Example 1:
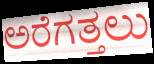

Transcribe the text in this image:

ಅರೆಗತ್ತಲು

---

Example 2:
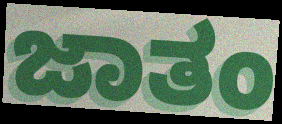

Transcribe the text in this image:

ಜಾತಂ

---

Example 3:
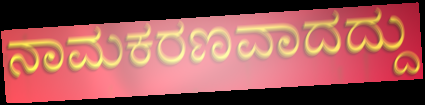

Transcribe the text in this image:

ನಾಮಕರಣವಾದದ್ದು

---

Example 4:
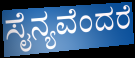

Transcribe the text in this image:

ಸೈನ್ಯವೆಂದರೆ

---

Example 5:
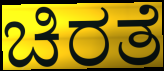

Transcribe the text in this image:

ಚಿರತೆ